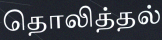
தொலித்தல்